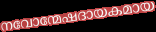
നവോന്മേഷദായകമായ